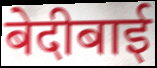
बेदीबाई